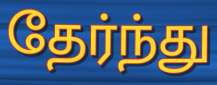
தேர்ந்து